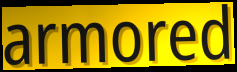
armored